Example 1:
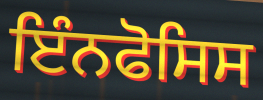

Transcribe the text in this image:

ਇੰਨਫੋਸਿਸ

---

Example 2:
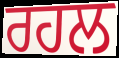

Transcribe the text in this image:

ਰਹਲ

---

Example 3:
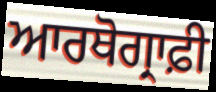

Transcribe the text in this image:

ਆਰਥੋਗ੍ਰਾਫ਼ੀ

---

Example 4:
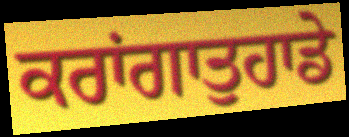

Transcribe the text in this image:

ਕਰਾਂਗਾਤੁਹਾਡੇ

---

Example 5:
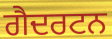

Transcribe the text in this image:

ਗੈਦਰਟਨ